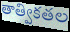
తాత్వికతల